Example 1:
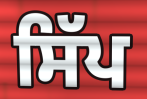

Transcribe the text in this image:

ਸਿੱਪ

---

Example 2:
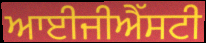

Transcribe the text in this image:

ਆਈਜੀਐੱਸਟੀ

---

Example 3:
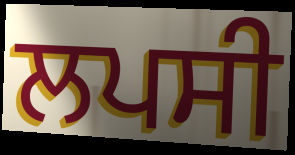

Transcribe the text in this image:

ਲਪਸੀ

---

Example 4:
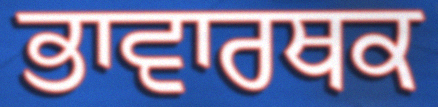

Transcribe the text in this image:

ਭਾਵਾਰਥਕ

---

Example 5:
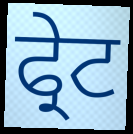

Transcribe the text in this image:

ਫ੍ਰੇਟ